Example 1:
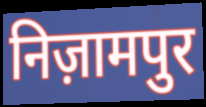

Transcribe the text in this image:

निज़ामपुर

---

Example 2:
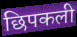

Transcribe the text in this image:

छिपकली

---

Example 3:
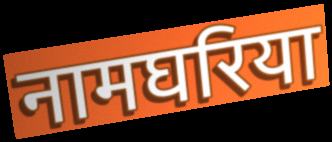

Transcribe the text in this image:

नामघरिया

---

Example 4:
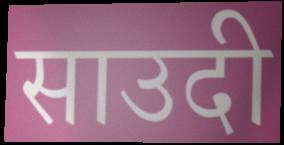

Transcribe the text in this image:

साउदी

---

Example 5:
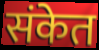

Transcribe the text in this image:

संकेत